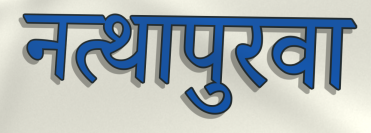
नत्थापुरवा